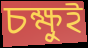
চক্ষুই